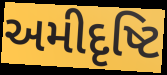
અમીદૃષ્ટિ